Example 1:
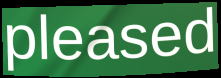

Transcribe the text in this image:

pleased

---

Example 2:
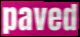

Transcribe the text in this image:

paved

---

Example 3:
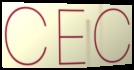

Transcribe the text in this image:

CEC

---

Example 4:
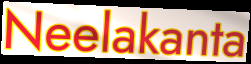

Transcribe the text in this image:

Neelakanta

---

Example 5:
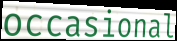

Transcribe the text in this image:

occasional